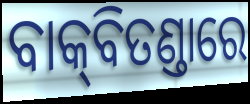
ବାକ୍‌ବିତଣ୍ଡାରେ